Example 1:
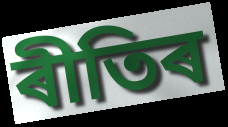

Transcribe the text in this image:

ৰীতিৰ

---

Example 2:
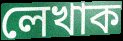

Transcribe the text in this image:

লেখাক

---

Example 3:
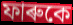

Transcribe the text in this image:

ফাৰুকে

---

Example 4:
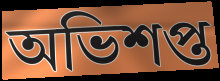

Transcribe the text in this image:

অভিশপ্ত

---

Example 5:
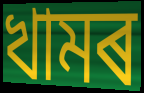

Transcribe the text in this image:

খামৰ